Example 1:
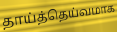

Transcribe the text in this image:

தாய்த்தெய்வமாக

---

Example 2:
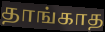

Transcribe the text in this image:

தாங்காத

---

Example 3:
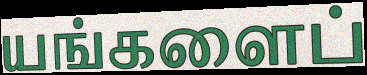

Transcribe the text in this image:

யங்களைப்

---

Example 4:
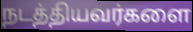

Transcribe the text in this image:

நடத்தியவர்களை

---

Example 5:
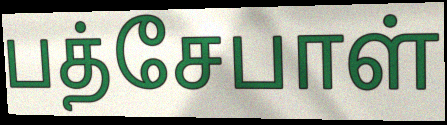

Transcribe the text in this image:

பத்சேபாள்